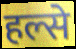
हल्से